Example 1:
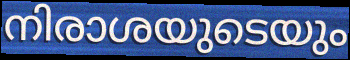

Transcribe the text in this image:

നിരാശയുടെയും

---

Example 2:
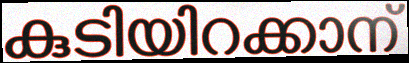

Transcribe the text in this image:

കുടിയിറക്കാന്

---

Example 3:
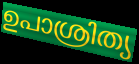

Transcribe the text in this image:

ഉപാശ്രിത്യ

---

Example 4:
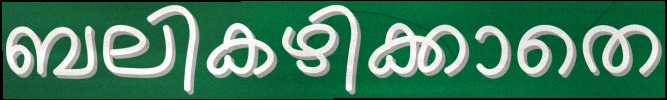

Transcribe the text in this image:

ബലികഴിക്കാതെ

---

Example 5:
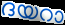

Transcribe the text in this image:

ദയറാ